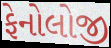
ફેનોલોજી